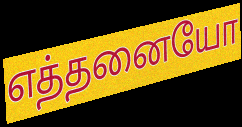
எத்தனையோ